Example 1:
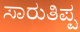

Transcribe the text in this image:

ಸಾರುತಿಪ್ಪ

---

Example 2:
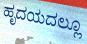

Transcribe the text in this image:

ಹೃದಯದಲ್ಲೂ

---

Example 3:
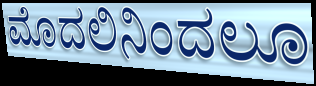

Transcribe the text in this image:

ಮೊದಲಿನಿಂದಲೂ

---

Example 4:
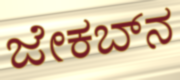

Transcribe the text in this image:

ಜೇಕಬ್‌ನ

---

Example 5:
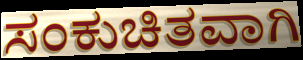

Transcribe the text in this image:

ಸಂಕುಚಿತವಾಗಿ